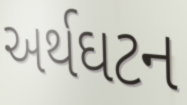
અર્થઘટન